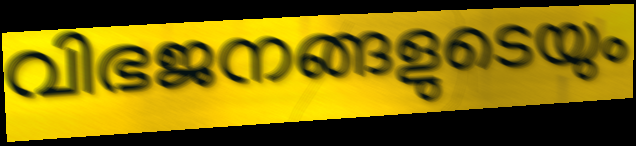
വിഭജനങ്ങളുടെയും